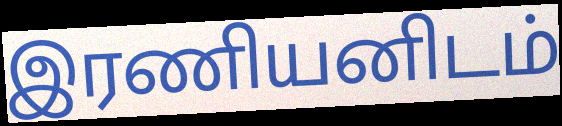
இரணியனிடம்